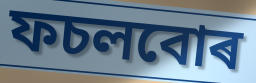
ফচলবোৰ